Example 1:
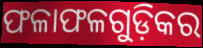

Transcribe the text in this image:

ଫଳାଫଳଗୁଡ଼ିକର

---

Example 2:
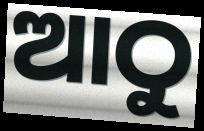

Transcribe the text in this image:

ଆଠୁ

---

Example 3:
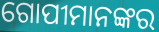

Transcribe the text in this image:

ଗୋପୀମାନଙ୍କର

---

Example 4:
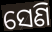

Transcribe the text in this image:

ସେଣି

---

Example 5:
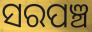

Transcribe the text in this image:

ସରପଞ୍ଚ